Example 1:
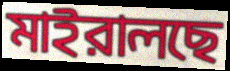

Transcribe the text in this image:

মাইরালছে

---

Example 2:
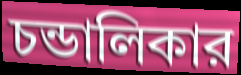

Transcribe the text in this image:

চন্ডালিকার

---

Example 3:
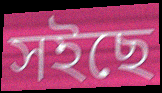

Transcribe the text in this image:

সইছে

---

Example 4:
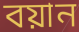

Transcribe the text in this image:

বয়ান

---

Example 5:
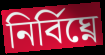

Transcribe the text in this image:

নির্বিঘ্নে